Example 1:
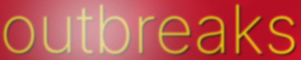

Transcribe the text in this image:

outbreaks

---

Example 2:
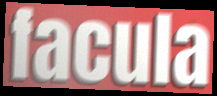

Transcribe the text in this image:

facula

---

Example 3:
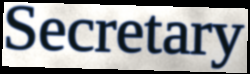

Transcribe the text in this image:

Secretary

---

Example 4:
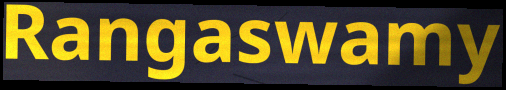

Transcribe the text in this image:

Rangaswamy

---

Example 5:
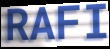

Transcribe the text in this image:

RAFI